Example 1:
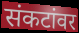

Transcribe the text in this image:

संकटांवर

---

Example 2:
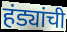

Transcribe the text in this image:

हंड्यांची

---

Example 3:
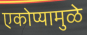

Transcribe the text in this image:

एकोप्यामुळे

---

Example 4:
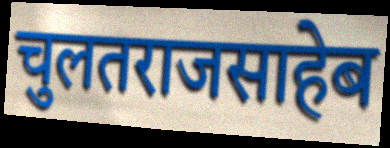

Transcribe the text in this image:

चुलतराजसाहेब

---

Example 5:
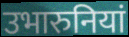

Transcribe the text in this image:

उभारुनियां